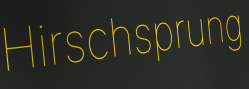
Hirschsprung